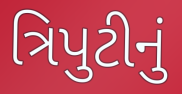
ત્રિપુટીનું